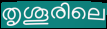
തൃശൂരിലെ